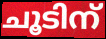
ചൂടിന്